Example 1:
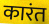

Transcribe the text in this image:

कारंत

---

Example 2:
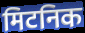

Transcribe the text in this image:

मिटनिक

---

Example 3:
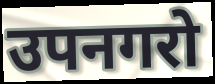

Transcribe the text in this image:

उपनगरो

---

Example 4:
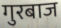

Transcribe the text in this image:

गुरबाज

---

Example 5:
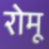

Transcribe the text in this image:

रोमू